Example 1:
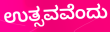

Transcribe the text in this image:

ಉತ್ಸವವೆಂದು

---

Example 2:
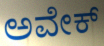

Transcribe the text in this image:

ಅವೇಕ್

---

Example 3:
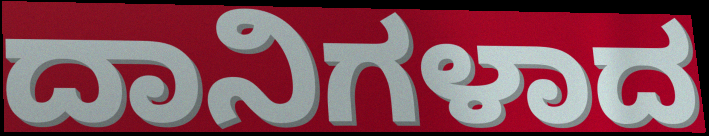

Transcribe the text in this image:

ದಾನಿಗಳಾದ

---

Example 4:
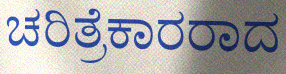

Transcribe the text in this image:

ಚರಿತ್ರೆಕಾರರಾದ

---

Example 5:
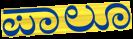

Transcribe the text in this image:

ಪಾಲೂ